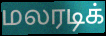
மலரடிக்